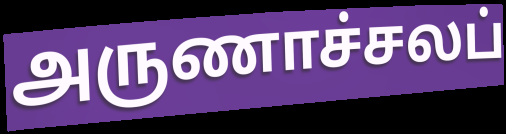
அருணாச்சலப்